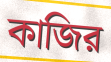
কাজির